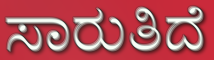
ಸಾರುತಿದೆ